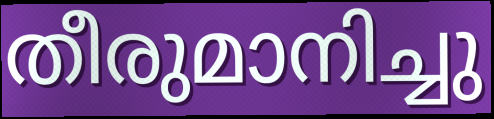
തീരുമാനിച്ചു